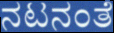
ನಟನಂತೆ